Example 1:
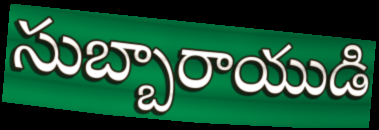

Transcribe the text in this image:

సుబ్బారాయుడి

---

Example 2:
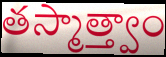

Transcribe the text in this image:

తస్మాత్త్వాం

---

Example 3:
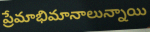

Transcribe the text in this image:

ప్రేమాభిమానాలున్నాయి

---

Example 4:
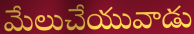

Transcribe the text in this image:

మేలుచేయువాడు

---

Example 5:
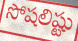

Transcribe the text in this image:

సోషలిష్టు